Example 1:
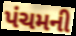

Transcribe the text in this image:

પંચમની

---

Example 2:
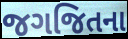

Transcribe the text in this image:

જગજિતના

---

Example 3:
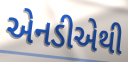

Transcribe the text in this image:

એનડીએથી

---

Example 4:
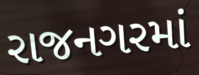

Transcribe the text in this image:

રાજનગરમાં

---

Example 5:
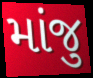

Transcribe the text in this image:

માંજુ